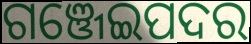
ଗଞ୍ଜେଇପଦର